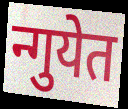
न्गुयेत